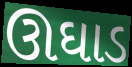
ઊઘાડ